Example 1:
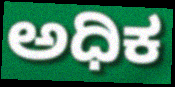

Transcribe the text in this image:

ಅಧಿಕ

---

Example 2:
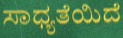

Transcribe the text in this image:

ಸಾಧ್ಯತೆಯಿದೆ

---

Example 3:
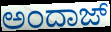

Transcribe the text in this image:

ಅಂದಾಜ್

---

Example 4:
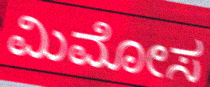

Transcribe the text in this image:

ಮಿಮೋಸ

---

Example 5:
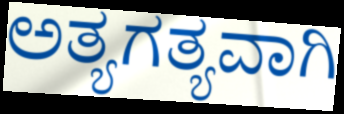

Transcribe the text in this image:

ಅತ್ಯಗತ್ಯವಾಗಿ